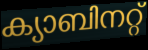
ക്യാബിനറ്റ്